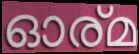
ഓര്മ